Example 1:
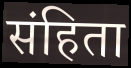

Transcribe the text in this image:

संहिता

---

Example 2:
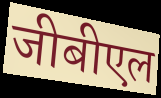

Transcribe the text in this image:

जीबीएल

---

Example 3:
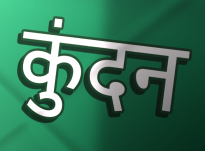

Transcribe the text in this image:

कुंदन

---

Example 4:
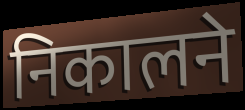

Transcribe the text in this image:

निकालने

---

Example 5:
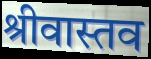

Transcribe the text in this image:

श्रीवास्‍तव